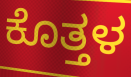
ಕೊತ್ತಳ